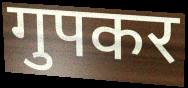
गुपकर